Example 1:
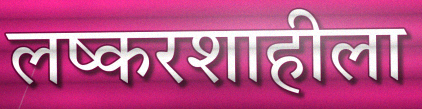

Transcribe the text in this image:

लष्करशाहीला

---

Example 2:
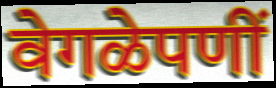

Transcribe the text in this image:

वेगळेपणीं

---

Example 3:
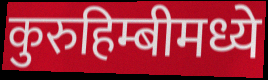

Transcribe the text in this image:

कुरुहिम्बीमध्ये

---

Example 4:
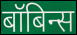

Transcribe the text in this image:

बॉबिन्स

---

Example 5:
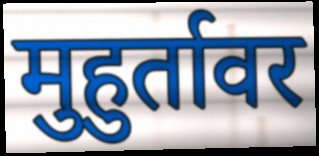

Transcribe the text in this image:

मुहुर्तावर